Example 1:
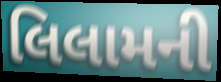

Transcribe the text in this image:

લિલામની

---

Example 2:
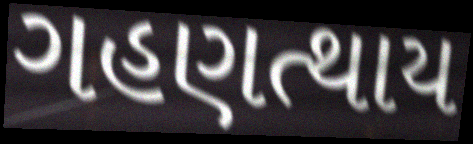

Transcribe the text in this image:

ગહણત્થાય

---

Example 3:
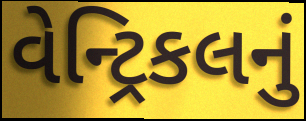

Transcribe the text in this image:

વેન્ટ્રિકલનું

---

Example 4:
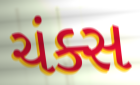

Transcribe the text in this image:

ચંક્સ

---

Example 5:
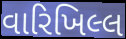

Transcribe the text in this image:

વારિખિલ્લ